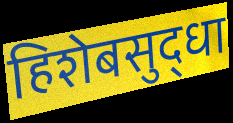
हिशेबसुद्धा